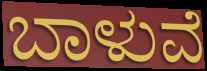
ಬಾಳುವೆ